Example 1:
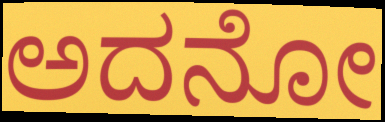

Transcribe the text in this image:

ಅದನೋ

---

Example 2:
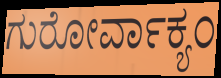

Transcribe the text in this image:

ಗುರೋರ್ವಾಕ್ಯಂ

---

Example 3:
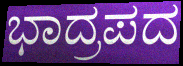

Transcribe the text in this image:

ಭಾದ್ರಪದ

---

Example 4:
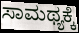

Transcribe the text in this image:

ಸಾಮಥ್ಯಕ್ಕೆ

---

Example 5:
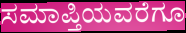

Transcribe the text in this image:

ಸಮಾಪ್ತಿಯವರೆಗೂ